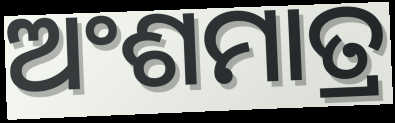
ଅଂଶମାତ୍ର